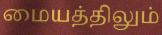
மையத்திலும்